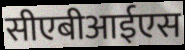
सीएबीआईएस